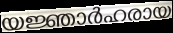
യജ്ഞാർഹരായ